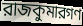
রাজকুমারগণ